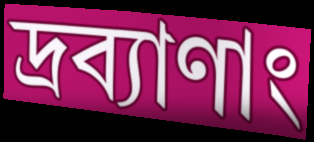
দ্রব্যাণাং